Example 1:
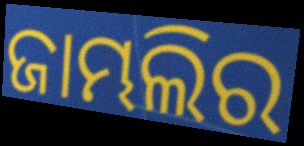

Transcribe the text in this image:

ଜାମ୍ଭଲିର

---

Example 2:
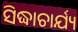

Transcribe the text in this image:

ସିଦ୍ଧାଚାର୍ଯ୍ୟ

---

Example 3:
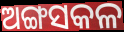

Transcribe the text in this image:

ଅଙ୍ଗସକଳ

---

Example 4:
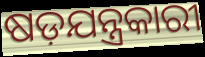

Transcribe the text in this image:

ଷଡ଼ଯନ୍ତ୍ରକାରୀ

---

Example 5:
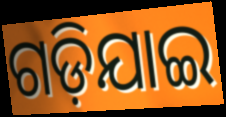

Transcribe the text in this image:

ଗଡ଼ିଯାଇ